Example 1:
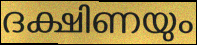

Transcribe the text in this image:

ദക്ഷിണയും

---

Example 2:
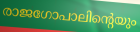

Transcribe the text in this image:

രാജഗോപാലിന്റെയും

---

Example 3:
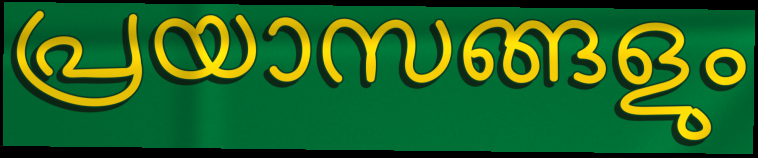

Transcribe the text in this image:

പ്രയാസങ്ങളും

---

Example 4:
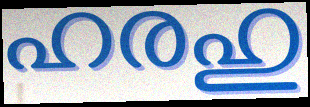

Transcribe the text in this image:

ഹരഹു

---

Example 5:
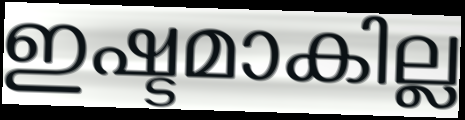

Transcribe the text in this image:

ഇഷ്ടമാകില്ല